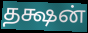
தக்ஷன்